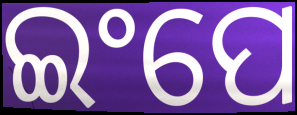
ଇଂପେ